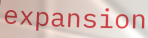
expansion